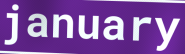
january